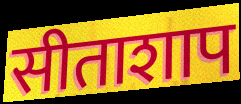
सीताशाप